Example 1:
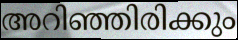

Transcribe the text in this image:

അറിഞ്ഞിരിക്കും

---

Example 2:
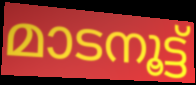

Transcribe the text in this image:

മാടനൂട്ട്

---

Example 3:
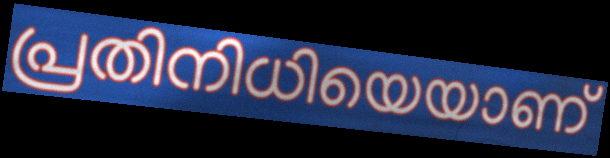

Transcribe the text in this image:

പ്രതിനിധിയെയാണ്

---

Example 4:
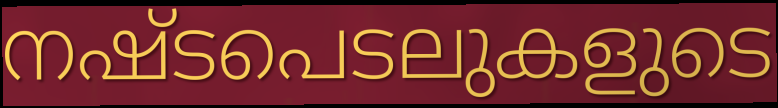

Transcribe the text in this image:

നഷ്ടപെടലുകളുടെ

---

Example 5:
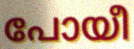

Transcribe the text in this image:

പോയീ